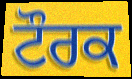
ਟੌਰਕ